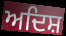
ਅਦਿਸ਼